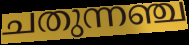
ചതുന്നഞ്ച